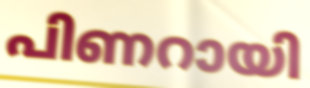
പിണറായി